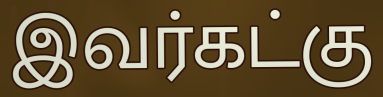
இவர்கட்கு